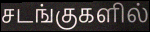
சடங்குகளில்